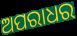
ଅପରାଧର